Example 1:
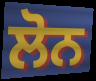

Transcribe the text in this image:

ਲੋਨ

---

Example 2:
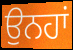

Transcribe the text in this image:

ਉਨਹਾਂ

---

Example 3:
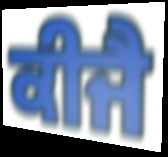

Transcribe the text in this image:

ਕੀਜੈ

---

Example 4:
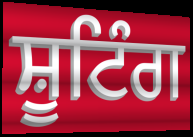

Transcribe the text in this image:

ਸ਼ੂਟਿੰਗ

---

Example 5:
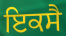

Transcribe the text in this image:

ਇਕਸੈ